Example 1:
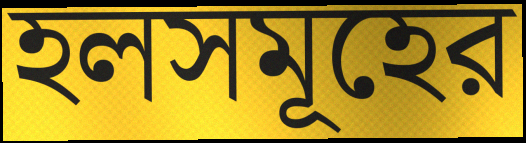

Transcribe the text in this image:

হলসমূহের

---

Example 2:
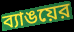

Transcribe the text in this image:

ব্যাঙয়ের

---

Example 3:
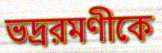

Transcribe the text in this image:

ভদ্ররমণীকে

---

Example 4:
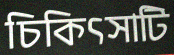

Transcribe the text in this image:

চিকিৎসাটি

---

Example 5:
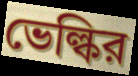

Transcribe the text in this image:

ভেল্কির